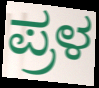
ಪ್ರಳ